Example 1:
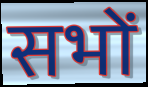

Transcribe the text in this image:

सभों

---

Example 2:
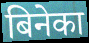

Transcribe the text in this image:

बिनेका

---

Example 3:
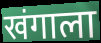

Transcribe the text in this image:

खंगाला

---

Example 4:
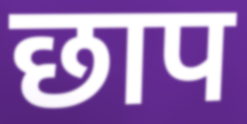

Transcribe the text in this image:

छाप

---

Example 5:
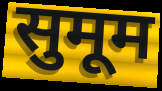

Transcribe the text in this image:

सुमूम